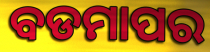
ବଡମାପର